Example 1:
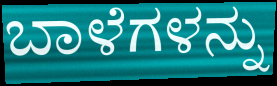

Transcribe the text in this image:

ಬಾಳೆಗಳನ್ನು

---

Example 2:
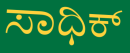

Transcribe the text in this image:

ಸಾಧಿಕ್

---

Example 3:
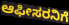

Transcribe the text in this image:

ಆಫೀಸರನಿಗೆ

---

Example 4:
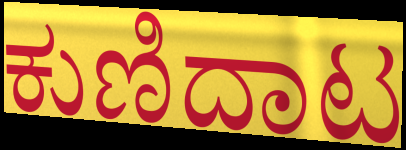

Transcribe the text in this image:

ಕುಣಿದಾಟ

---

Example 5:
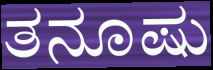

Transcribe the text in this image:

ತನೂಷು